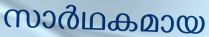
സാർഥകമായ